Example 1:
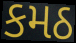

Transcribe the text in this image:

કમઠ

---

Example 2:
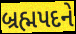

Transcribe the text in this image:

બ્રહ્મપદને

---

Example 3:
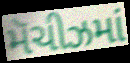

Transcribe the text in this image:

મૅચીઝમાં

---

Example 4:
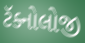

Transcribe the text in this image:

ટૅક્નોલોજી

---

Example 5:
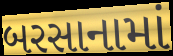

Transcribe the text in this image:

બરસાનામાં